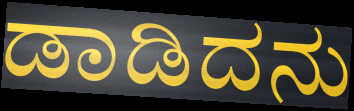
ಡಾಡಿದನು